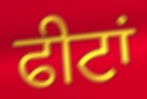
ਫੀਟਾਂ